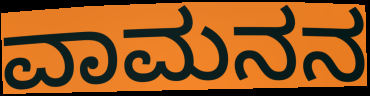
ವಾಮನನ